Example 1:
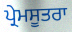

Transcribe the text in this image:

ਪ੍ਰੇਮਸੂਤਰਾ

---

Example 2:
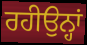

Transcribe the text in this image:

ਰਹੀਉਨ੍ਹਾਂ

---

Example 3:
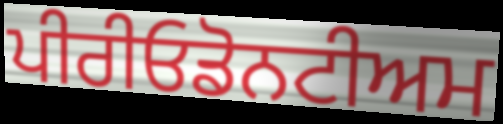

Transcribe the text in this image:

ਪੀਰੀਓਡੋਨਟੀਅਮ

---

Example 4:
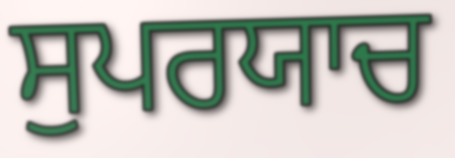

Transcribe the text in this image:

ਸੁਪਰਯਾਚ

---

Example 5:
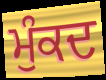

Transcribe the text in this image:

ਮੁੰਕਦ